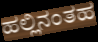
ಹಲ್ಲಿನಂತಹ